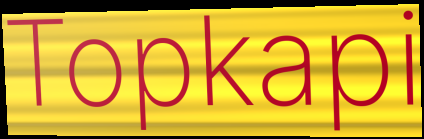
Topkapi